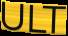
ULT